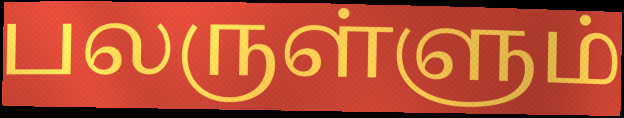
பலருள்ளும்